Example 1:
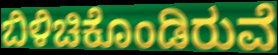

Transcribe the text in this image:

ಬಿಳಿಚಿಕೊಂಡಿರುವೆ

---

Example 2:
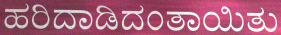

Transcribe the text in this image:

ಹರಿದಾಡಿದಂತಾಯಿತು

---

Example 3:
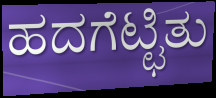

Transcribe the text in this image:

ಹದಗೆಟ್ಟಿತು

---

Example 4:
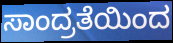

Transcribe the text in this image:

ಸಾಂದ್ರತೆಯಿಂದ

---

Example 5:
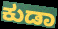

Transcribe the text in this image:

ಕುಡಾ